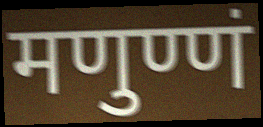
मणुण्णं